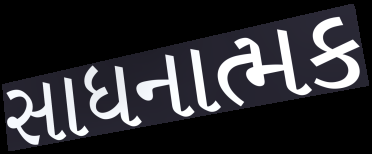
સાધનાત્મક